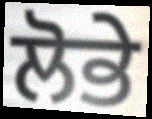
ਲੋਭੇ